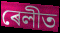
ৰেলীত